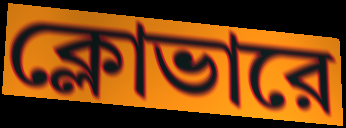
ক্লোভারে